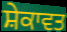
ਸ਼ੇਕਾਵਤ